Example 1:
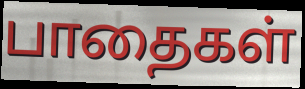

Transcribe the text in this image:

பாதைகள்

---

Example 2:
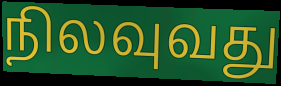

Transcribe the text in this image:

நிலவுவது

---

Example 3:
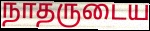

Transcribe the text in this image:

நாதருடைய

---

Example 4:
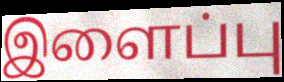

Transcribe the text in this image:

இளைப்பு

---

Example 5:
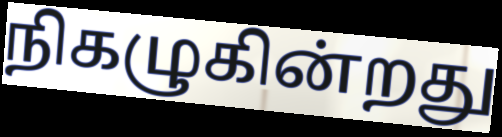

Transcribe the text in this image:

நிகழுகின்றது